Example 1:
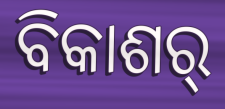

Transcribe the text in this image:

ବିକାଶର୍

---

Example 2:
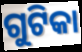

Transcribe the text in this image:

ଗୁଟିକା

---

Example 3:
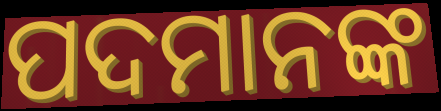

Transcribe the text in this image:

ପଦମାନଙ୍କ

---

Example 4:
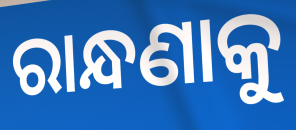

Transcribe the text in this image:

ରାନ୍ଧଣାକୁ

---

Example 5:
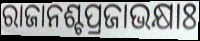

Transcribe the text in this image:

ରାଜାନଶ୍ଚପ୍ରଜାଭକ୍ଷାଃ